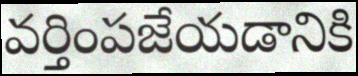
వర్తింపజేయడానికి